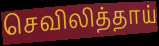
செவிலித்தாய்